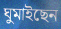
ঘুমাইছেন